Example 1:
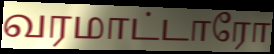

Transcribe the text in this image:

வரமாட்டாரோ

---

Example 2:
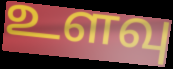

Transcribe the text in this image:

உளவு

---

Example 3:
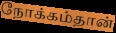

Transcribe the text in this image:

நோக்கம்தான்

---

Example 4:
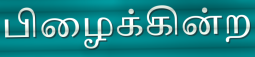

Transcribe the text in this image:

பிழைக்கின்ற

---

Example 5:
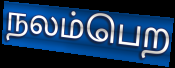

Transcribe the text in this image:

நலம்பெற